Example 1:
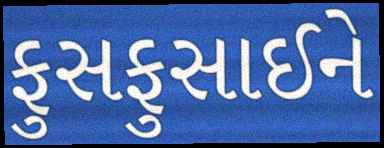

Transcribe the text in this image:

ફુસફુસાઈને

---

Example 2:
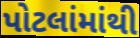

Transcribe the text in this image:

પોટલાંમાંથી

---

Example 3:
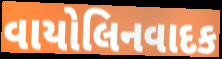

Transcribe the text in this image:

વાયોલિનવાદક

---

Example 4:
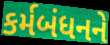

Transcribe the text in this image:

કર્મબંધનને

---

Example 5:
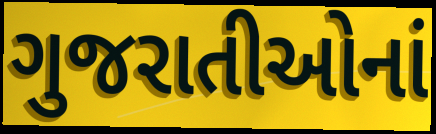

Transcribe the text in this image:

ગુજરાતીઓનાં